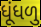
ધૂંધળુ